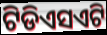
ଟିଡିଏସଏଟି